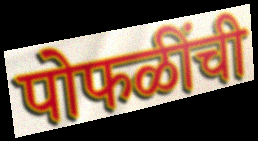
पोफळींची